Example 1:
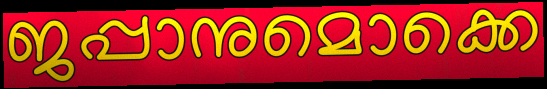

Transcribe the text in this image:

ജപ്പാനുമൊക്കെ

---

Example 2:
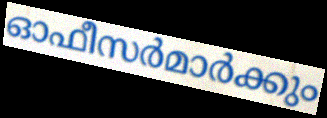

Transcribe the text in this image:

ഓഫീസർമാർക്കും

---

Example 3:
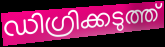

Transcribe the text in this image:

ഡിഗ്രിക്കടുത്ത്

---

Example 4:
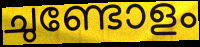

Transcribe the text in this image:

ചുണ്ടോളം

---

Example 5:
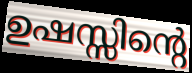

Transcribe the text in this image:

ഉഷസ്സിന്റെ